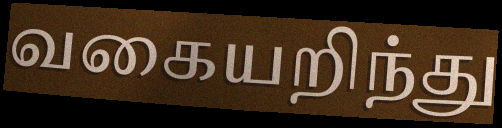
வகையறிந்து